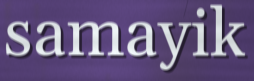
samayik